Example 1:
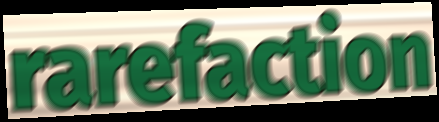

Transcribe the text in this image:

rarefaction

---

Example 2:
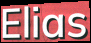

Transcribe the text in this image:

Elias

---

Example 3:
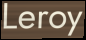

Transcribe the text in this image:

Leroy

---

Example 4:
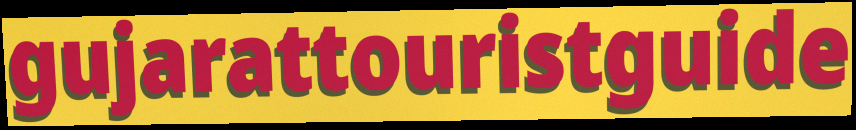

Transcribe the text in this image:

gujarattouristguide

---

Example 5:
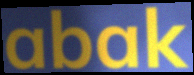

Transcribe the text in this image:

abak